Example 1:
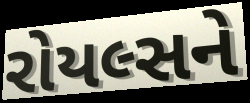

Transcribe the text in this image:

રોયલ્સને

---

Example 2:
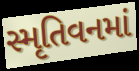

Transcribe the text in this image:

સ્મૃતિવનમાં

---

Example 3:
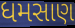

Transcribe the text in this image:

ધમસાણ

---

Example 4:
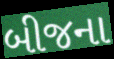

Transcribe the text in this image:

બીજના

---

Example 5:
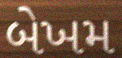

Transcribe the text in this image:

બેખમ